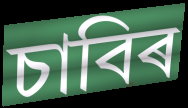
চাবিৰ